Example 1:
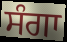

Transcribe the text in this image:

ਸੰਗਾ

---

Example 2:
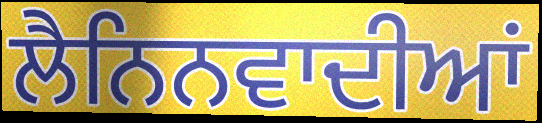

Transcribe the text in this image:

ਲੈਨਿਨਵਾਦੀਆਂ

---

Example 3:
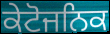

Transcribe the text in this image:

ਕੇਟੋਜਨਿਕ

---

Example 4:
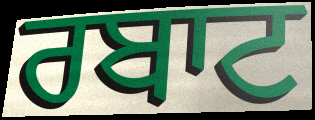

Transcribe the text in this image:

ਰਬਾਟ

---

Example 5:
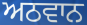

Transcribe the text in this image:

ਅਠਵਾਨ